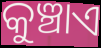
କୁଞ୍ଚାଏ